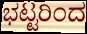
ಭಟ್ಟರಿಂದ